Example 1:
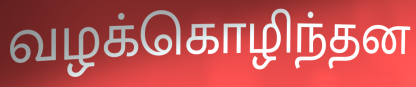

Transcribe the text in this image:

வழக்கொழிந்தன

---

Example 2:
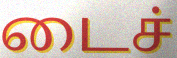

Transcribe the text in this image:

டைச்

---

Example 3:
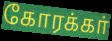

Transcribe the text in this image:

கோரக்கர்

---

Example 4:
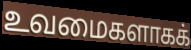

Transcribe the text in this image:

உவமைகளாகக்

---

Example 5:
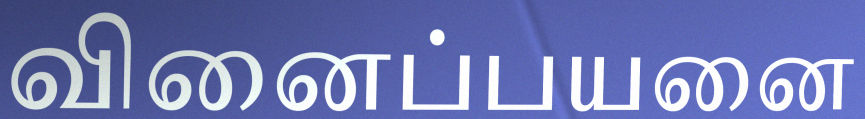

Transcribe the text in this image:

வினைப்பயனை